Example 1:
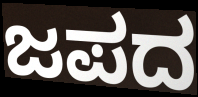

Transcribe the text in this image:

ಜಪದ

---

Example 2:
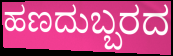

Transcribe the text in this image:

ಹಣದುಬ್ಬರದ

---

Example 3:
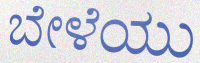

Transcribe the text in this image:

ಬೇಳೆಯು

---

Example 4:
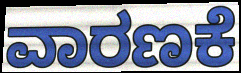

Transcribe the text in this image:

ವಾರಣಕೆ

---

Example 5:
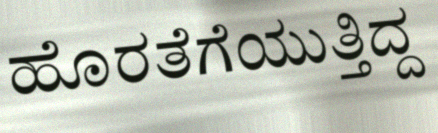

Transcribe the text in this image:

ಹೊರತೆಗೆಯುತ್ತಿದ್ದ